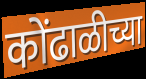
कोंढाळीच्या